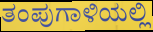
ತಂಪುಗಾಳಿಯಲ್ಲಿ